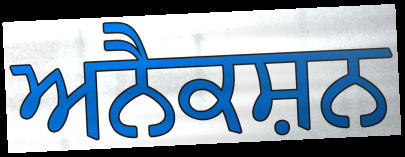
ਅਨੈਕਸ਼ਨ